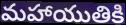
మహాయుతికి